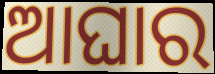
ଆଘାର